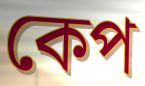
কেপ